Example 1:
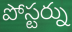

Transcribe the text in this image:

పోస్టర్ను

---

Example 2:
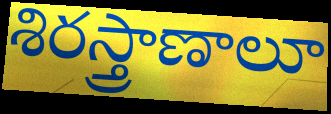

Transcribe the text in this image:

శిరస్త్రాణాలూ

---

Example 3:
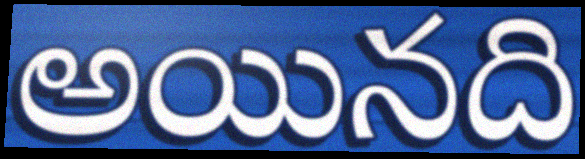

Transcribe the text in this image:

అయినది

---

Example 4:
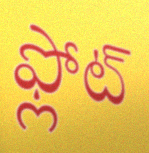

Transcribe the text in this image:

ఫ్లోట్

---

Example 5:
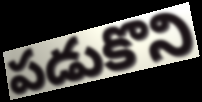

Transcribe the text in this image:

పడుకొని